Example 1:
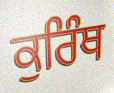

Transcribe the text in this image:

ਕੁਰਿੰਥ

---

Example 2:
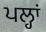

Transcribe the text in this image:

ਪਲ੍ਹਾਂ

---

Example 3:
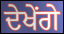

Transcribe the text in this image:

ਦੇਖੇਂਗੇ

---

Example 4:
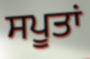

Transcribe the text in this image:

ਸਪੂਤਾਂ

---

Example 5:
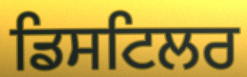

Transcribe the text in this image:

ਡਿਸਟਿਲਰ